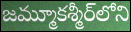
జమ్మూకశ్మీర్‌లోని